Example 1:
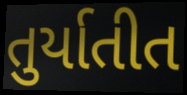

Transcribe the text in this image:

તુર્યાતીત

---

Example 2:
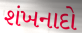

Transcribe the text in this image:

શંખનાદો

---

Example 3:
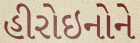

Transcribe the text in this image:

હીરોઇનોને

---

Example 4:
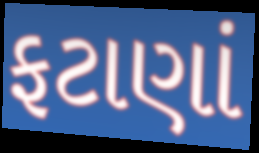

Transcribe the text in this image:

ફટાણાં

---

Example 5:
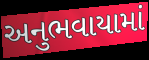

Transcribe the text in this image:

અનુભવાયામાં